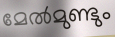
മേൽമുണ്ടും